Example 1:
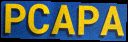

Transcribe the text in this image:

PCAPA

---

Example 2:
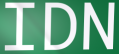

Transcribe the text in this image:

IDN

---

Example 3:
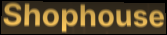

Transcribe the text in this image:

Shophouse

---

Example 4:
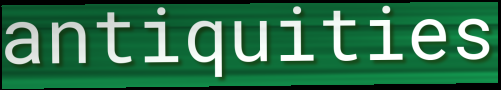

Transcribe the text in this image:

antiquities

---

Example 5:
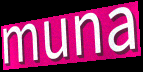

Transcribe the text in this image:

muna